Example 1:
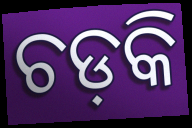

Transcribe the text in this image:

ଚଡ଼କି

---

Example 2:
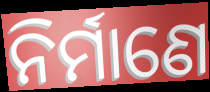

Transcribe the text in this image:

ନିର୍ମାଣେ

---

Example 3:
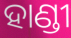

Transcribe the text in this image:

ହାଣ୍ଡୀ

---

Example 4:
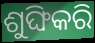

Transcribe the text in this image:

ଶୁଙ୍ଘିକରି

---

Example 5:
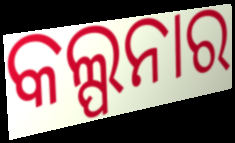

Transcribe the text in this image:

କଲ୍ପନାର